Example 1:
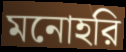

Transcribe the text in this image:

মনোহরি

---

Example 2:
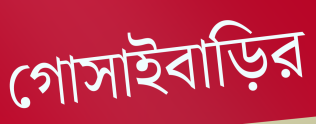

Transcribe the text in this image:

গোসাইবাড়ির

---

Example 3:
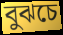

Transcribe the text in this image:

বুঝচে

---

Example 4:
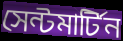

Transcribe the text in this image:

সেন্টমার্টিন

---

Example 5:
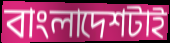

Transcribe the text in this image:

বাংলাদেশটাই